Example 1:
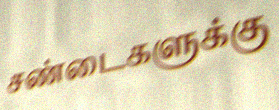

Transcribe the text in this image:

சண்டைகளுக்கு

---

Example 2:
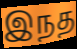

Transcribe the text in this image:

இநத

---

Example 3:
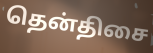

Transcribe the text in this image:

தென்திசை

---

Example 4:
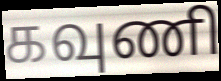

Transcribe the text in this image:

கவுணி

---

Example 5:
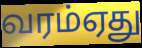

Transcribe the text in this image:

வரம்ஏது